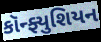
કૉન્ફ્યુશિયન